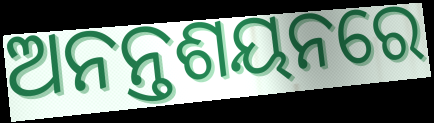
ଅନନ୍ତଶୟନରେ